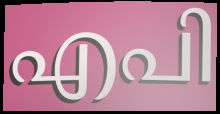
എപി